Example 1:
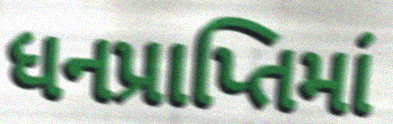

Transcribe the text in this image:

ધનપ્રાપ્તિમાં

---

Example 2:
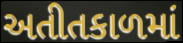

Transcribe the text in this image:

અતીતકાળમાં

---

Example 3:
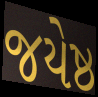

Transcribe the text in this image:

જયેષ્ઠ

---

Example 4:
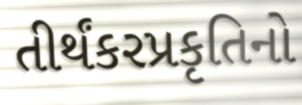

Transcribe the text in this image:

તીર્થંકરપ્રકૃતિનો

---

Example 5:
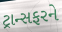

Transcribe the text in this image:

ટ્રાન્સફરને